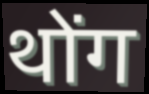
थोंग